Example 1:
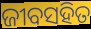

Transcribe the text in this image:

ଜୀବସହିତ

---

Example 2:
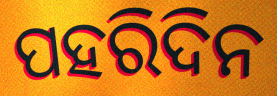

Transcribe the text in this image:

ପହରିଦିନ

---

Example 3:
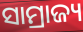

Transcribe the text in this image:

ସାମ୍ରାଜ୍ୟ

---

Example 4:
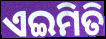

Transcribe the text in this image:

ଏଇମିତି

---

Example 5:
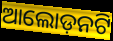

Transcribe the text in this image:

ଆଲୋଡ଼ନଟି